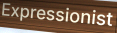
Expressionist